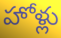
హోళ్లు